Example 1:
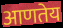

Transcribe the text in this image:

आणतेय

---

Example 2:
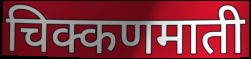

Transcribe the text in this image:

चिक्कणमाती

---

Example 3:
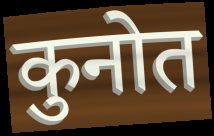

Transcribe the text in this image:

कुनोत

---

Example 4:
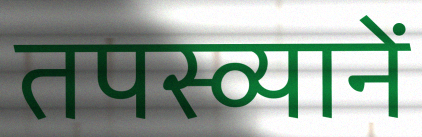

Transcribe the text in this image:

तपस्व्यानें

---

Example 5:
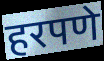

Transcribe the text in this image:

हरपणे